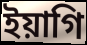
ইয়াগি